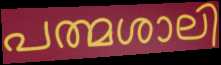
പത്മശാലി